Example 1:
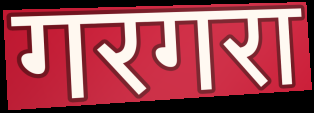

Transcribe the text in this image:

गरगरा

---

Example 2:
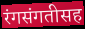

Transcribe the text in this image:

रंगसंगतीसह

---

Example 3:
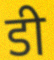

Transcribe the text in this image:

डी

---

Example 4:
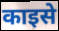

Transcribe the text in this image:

काइसे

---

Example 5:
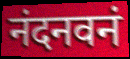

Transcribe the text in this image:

नंदनवनं